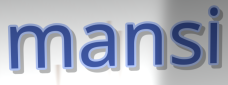
mansi